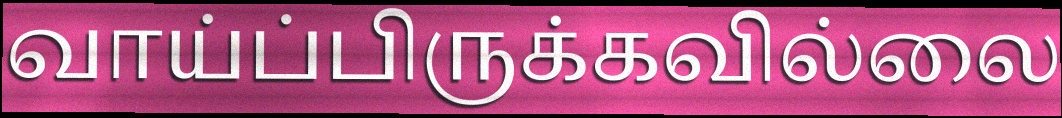
வாய்ப்பிருக்கவில்லை